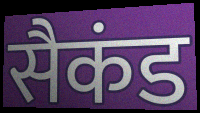
सैकंड